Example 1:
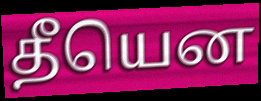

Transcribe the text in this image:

தீயென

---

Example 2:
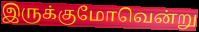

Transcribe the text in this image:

இருக்குமோவென்று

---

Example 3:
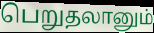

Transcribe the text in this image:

பெறுதலானும்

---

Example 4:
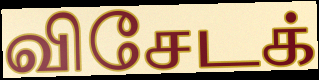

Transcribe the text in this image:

விசேடக்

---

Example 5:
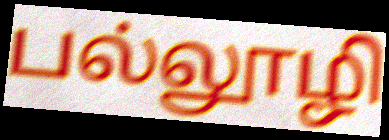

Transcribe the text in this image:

பல்லூழி